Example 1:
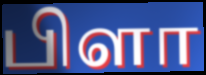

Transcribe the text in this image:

பிளா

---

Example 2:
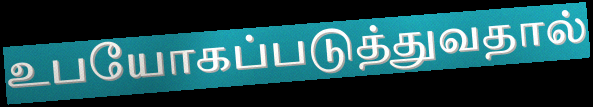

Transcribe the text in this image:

உபயோகப்படுத்துவதால்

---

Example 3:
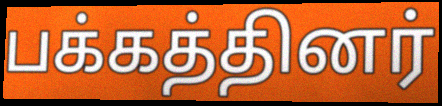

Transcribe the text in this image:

பக்கத்தினர்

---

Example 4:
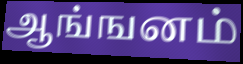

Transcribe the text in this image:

ஆங்ஙனம்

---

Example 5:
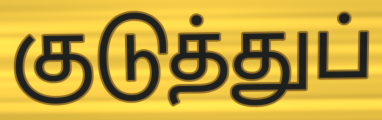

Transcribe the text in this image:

குடுத்துப்